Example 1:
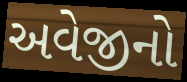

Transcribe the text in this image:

અવેજીનો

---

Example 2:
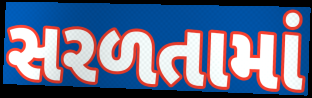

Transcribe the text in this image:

સરળતામાં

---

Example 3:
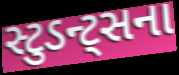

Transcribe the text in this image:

સ્ટુડન્ટ્સના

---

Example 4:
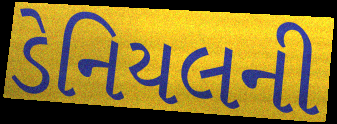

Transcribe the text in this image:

ડેનિયલની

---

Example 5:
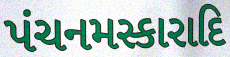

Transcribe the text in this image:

પંચનમસ્કારાદિ